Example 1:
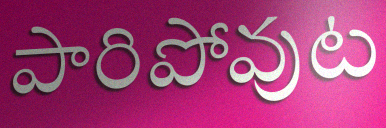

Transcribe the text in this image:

పారిపోవుట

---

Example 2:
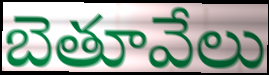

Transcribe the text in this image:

బెతూవేలు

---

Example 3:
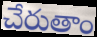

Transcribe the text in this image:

చేరుతాం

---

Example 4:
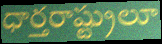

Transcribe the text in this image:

ధార్తరాష్ట్రులూ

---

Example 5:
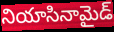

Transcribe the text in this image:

నియాసినామైడ్